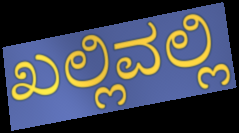
ಖಲ್ಲಿವಲ್ಲಿ